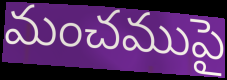
మంచముపై